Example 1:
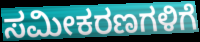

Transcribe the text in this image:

ಸಮೀಕರಣಗಳಿಗೆ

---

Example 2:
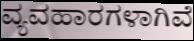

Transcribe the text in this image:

ವ್ಯವಹಾರಗಳಾಗಿವೆ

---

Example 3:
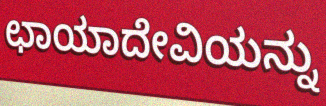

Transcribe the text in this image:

ಛಾಯಾದೇವಿಯನ್ನು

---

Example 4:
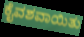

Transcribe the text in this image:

ಕೈವಶವಾಯಿತು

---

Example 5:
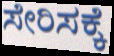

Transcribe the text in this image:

ಸೇರಿಸಕ್ಕೆ